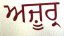
ਅਜ਼ੂਰ੍ਰ